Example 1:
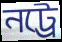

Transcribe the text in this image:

নট্ৰে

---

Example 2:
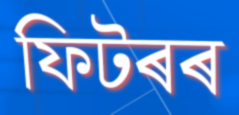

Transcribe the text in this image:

ফিটৰৰ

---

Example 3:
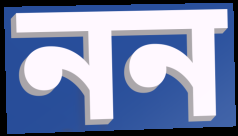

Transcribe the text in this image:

নন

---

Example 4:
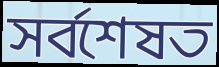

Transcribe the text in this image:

সৰ্বশেষত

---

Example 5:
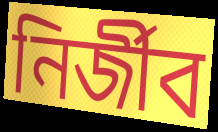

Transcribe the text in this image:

নিৰ্জীব